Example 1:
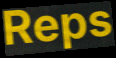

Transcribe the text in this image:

Reps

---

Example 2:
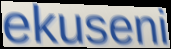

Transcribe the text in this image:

ekuseni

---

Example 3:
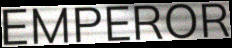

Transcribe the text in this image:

EMPEROR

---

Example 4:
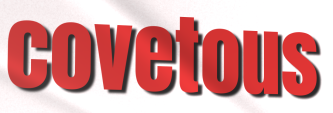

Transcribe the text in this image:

covetous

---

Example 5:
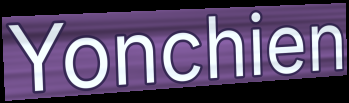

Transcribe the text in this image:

Yonchien